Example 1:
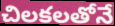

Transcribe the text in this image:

చిలకలతోనే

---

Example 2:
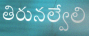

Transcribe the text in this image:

తిరునల్వేలి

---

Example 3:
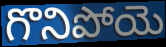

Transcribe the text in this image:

గొనిపోయె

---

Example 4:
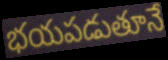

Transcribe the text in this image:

భయపడుతూనే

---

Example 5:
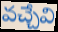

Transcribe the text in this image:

వచ్చేవి